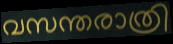
വസന്തരാത്രി